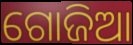
ଗୋଜିଆ